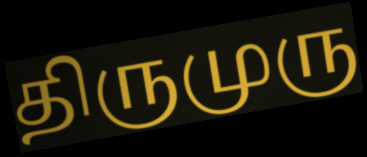
திருமுரு